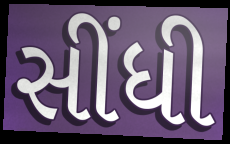
સીંધી